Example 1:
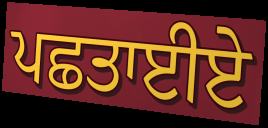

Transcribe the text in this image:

ਪਛਤਾਈਏ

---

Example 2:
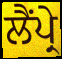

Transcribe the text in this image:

ਲੈਂਪ੍ਰੇ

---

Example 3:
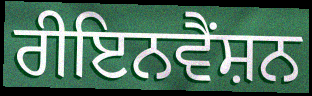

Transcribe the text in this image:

ਰੀਇਨਵੈਂਸ਼ਨ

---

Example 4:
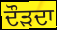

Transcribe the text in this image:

ਦੌੜਦਾ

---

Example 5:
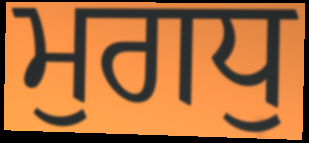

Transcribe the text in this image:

ਮੁਗਧੁ